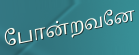
போன்றவனே